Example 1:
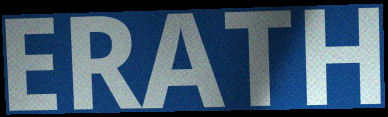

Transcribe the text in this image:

ERATH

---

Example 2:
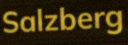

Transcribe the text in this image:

Salzberg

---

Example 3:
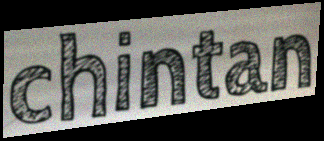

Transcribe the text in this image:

chintan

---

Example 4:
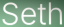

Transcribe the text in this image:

Seth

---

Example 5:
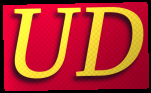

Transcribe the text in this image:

UD